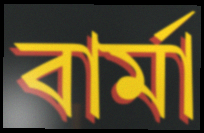
বার্মা